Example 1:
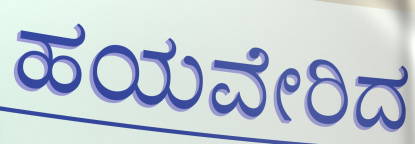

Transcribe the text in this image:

ಹಯವೇರಿದ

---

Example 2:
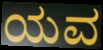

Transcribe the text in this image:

ಯವ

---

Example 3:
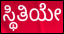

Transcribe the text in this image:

ಸ್ಥಿತಿಯೇ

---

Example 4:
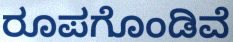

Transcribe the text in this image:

ರೂಪಗೊಂಡಿವೆ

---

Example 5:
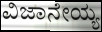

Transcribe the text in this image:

ವಿಜಾನೇಯ್ಯ